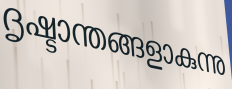
ദൃഷ്ടാന്തങ്ങളാകുന്നു